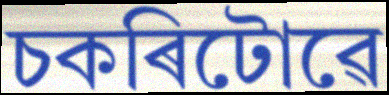
চকৰিটোৱে